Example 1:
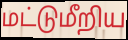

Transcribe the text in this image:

மட்டுமீறிய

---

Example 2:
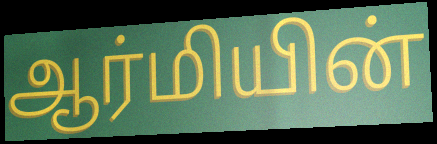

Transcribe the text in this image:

ஆர்மியின்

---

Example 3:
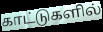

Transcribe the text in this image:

காட்டுகளில்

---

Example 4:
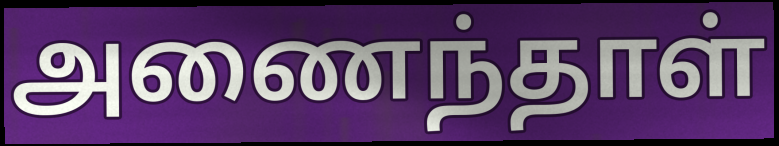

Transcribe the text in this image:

அணைந்தாள்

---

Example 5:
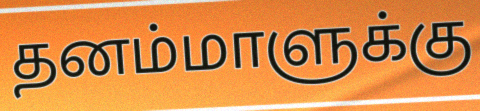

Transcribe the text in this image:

தனம்மாளுக்கு